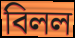
বিলল